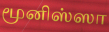
மூனிஸ்ஸா